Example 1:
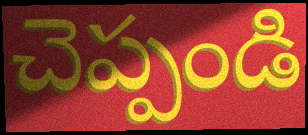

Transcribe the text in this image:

చెప్పండి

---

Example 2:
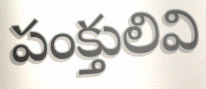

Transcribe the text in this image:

పంక్తులివి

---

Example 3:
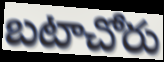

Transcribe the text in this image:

బటాచోరు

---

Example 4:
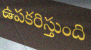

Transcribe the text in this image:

ఉపకరిస్తుంది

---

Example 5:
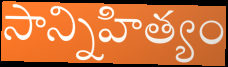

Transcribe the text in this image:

సాన్నిహిత్యం